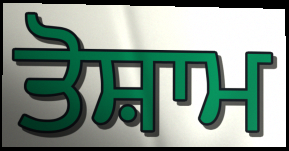
ਤੋਸ਼ਾਮ